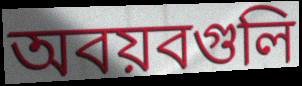
অবয়বগুলি